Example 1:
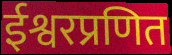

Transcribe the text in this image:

ईश्वरप्रणित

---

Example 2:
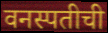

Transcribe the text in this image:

वनस्पतीची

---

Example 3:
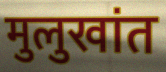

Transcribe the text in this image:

मुलुखांत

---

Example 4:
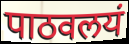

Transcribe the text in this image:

पाठवलयं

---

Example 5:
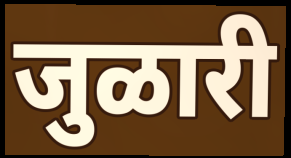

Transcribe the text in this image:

जुळारी